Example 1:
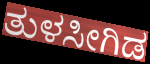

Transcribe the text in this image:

ತುಳಸೀಗಿಡ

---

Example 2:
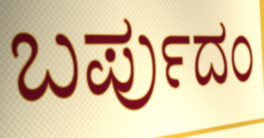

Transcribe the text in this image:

ಬರ್ಪುದಂ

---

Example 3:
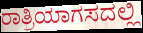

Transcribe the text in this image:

ರಾತ್ರಿಯಾಗಸದಲ್ಲಿ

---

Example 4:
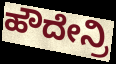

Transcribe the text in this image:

ಹೌದೇನ್ರಿ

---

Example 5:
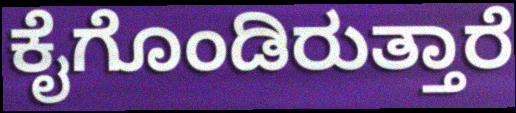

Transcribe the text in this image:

ಕೈಗೊಂಡಿರುತ್ತಾರೆ